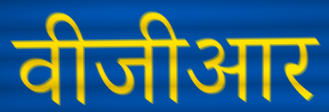
वीजीआर